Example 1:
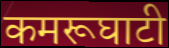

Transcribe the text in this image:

कमरूघाटी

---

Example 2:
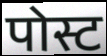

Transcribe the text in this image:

पोस्‍ट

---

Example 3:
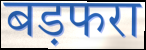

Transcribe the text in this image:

बड़फरा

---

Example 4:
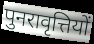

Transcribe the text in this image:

पुनरावृत्तियों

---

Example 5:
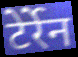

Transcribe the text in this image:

टेर्रेन